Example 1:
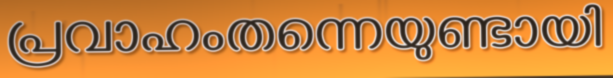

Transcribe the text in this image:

പ്രവാഹംതന്നെയുണ്ടായി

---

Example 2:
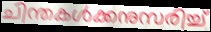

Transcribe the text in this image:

ചിന്തകൾക്കനുസരിച്ച്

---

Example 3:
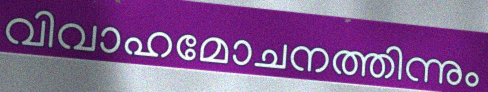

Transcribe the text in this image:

വിവാഹമോചനത്തിന്നും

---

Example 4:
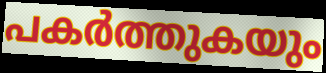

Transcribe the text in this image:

പകർത്തുകയും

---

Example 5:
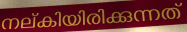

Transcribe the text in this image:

നല്‌കിയിരിക്കുന്നത്